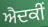
ਐਦਕੀਂ